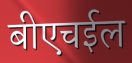
बीएचईल